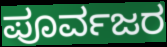
ಪೂರ್ವಜರ